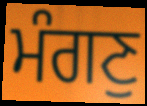
ਮੰਗਣੁ